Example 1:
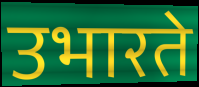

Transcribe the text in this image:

उभारते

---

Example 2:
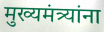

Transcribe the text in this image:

मुख्यमंत्र्यांना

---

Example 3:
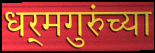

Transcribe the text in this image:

धर्मगुरुंच्या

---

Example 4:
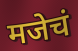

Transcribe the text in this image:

मजेचं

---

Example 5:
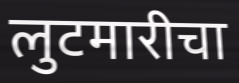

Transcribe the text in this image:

लुटमारीचा